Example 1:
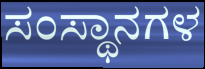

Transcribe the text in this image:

ಸಂಸ್ಥಾನಗಳ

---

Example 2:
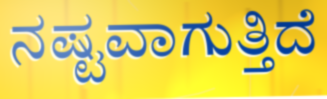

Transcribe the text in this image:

ನಷ್ಟವಾಗುತ್ತಿದೆ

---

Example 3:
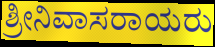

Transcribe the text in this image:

ಶ್ರೀನಿವಾಸರಾಯರು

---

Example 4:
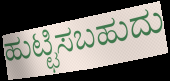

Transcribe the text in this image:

ಹುಟ್ಟಿಸಬಹುದು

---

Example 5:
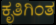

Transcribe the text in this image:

ಕೃತಿಗಿಂತ